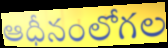
ఆధీనంలోగల